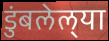
डुंबलेल्या